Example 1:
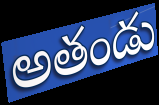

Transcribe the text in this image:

అతండు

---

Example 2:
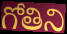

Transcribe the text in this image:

గోతిని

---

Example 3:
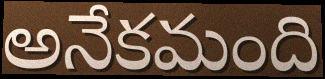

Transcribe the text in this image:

అనేకమంది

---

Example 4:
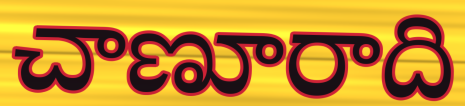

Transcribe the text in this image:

చాణూరాది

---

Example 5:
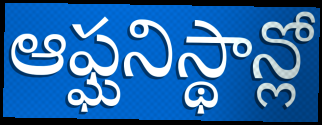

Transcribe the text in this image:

ఆఫ్ఘనిస్థాన్లో